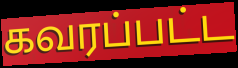
கவரப்பட்ட